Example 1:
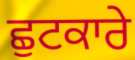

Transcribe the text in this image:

ਛੁਟਕਾਰੇ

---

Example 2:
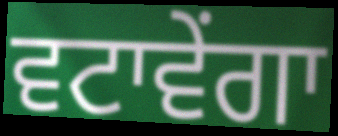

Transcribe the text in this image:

ਵਟਾਵੇਂਗਾ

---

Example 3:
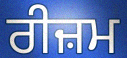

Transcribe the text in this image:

ਰੀਜ਼ਮ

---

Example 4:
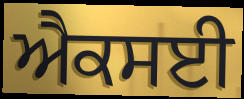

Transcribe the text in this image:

ਐਕਸਈ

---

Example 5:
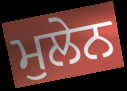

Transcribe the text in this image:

ਮੁਲੇਨ